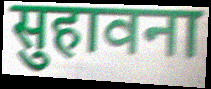
सुहावना